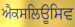
ਐਕਸਲਿਊਸਿਵ